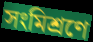
সংমিশ্ৰণে